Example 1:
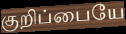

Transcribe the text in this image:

குறிப்பையே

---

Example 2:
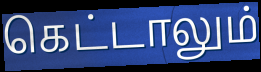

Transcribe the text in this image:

கெட்டாலும்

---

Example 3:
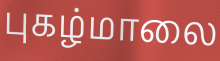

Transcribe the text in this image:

புகழ்மாலை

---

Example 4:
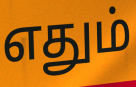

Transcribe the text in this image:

எதும்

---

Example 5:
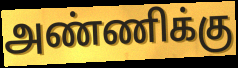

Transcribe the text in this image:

அண்ணிக்கு